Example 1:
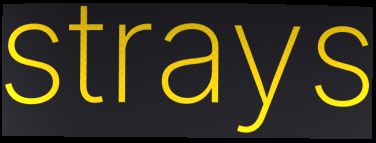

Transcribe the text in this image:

strays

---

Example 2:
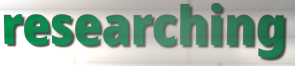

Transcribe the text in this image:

researching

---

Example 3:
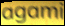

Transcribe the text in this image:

agami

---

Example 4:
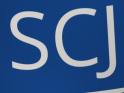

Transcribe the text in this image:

SCJ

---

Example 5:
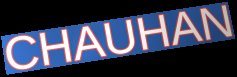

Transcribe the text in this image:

CHAUHAN